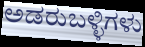
ಅಡರುಬಳ್ಳಿಗಳು